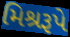
મિશ્રરૂપે